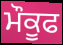
ਮੌਕੂਫ